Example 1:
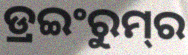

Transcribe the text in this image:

ଡ୍ରଇଂରୁମ୍‌ର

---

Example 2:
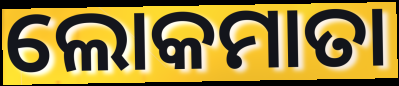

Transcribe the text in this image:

ଲୋକମାତା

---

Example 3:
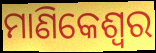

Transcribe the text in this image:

ମାଣିକେଶ୍ଵର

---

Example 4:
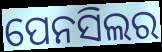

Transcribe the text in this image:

ପେନସିଲର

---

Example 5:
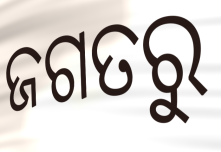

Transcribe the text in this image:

ଜଗତରୁ